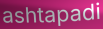
ashtapadi